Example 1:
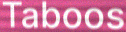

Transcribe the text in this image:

Taboos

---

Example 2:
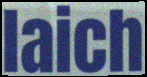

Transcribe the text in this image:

laich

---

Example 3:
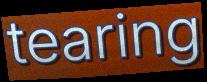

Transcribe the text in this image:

tearing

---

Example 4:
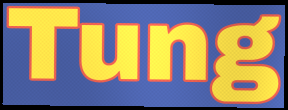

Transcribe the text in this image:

Tung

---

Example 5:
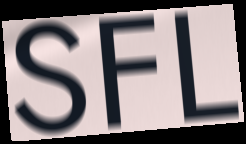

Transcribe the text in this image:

SFL